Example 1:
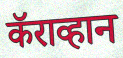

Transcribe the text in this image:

कॅराव्हान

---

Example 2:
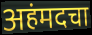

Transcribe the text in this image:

अहंमदचा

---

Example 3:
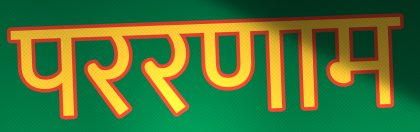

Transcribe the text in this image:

पररणाम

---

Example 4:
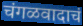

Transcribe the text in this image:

चंगळवादाचं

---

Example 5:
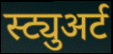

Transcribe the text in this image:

स्ट्युअर्ट